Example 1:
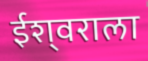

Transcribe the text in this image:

ईश्वराला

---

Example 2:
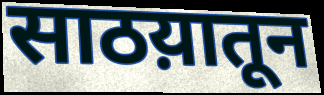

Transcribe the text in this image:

साठय़ातून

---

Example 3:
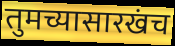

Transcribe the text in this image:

तुमच्यासारखंच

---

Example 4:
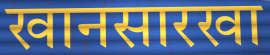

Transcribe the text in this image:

खानसारखा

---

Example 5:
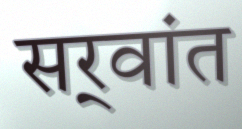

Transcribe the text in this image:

सर्वांत